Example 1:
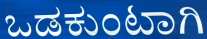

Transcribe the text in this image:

ಒಡಕುಂಟಾಗಿ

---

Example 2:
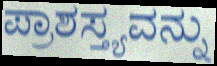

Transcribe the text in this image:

ಪ್ರಾಶಸ್ತ್ಯವನ್ನು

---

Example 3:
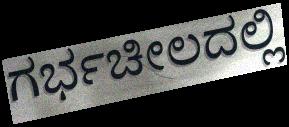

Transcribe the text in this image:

ಗರ್ಭಚೀಲದಲ್ಲಿ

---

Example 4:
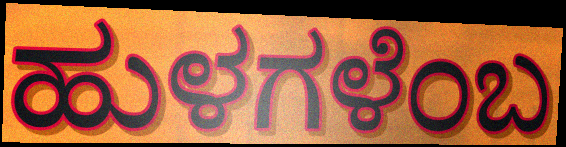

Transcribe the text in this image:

ಹುಳಗಳೆಂಬ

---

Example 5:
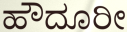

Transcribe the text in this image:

ಹೌದೂರೀ